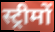
स्ट्रीमों